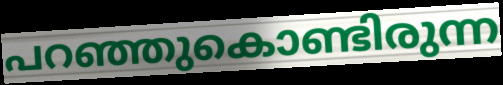
പറഞ്ഞുകൊണ്ടിരുന്ന